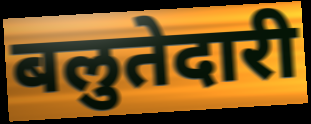
बलुतेदारी